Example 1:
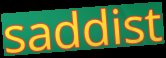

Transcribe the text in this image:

saddist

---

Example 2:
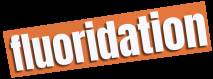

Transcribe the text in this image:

fluoridation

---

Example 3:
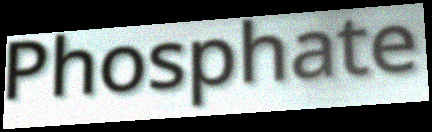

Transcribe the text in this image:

Phosphate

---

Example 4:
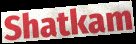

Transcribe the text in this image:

Shatkam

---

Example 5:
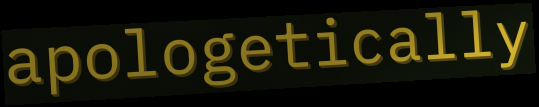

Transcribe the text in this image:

apologetically